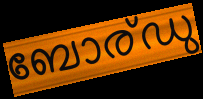
ബോര്ഡു